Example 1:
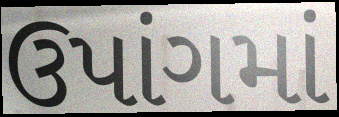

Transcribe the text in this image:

ઉપાંગમાં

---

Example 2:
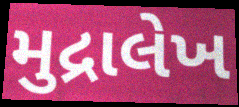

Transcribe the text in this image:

મુદ્રાલેખ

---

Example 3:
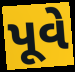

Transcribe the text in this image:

પૂવે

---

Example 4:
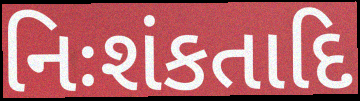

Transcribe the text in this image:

નિઃશંકતાદિ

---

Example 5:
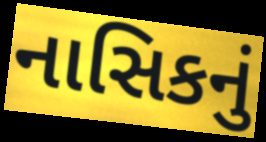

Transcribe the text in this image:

નાસિકનું